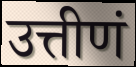
उत्तीणं